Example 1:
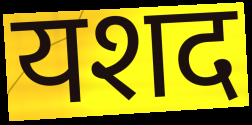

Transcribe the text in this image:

यशद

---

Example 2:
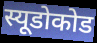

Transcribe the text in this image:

स्यूडोकोड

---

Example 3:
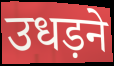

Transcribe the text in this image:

उधड़ने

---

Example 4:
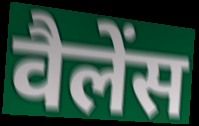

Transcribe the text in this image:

वैलेंस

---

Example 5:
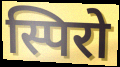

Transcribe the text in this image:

स्पिरो